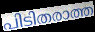
പിടിതരാത്ത